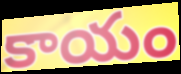
కాయం